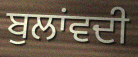
ਬੁਲਾਂਵਦੀ